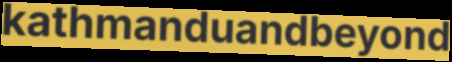
kathmanduandbeyond